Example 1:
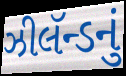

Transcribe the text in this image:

ઝીલૅન્ડનું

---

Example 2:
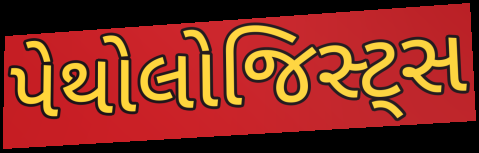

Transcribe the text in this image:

પેથોલોજિસ્ટ્સ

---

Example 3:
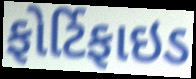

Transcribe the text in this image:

ફોર્ટિફાઇડ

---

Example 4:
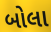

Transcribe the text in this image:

બોલા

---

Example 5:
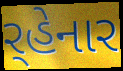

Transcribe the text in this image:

ર્‌હેનાર